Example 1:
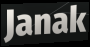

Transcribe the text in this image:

Janak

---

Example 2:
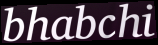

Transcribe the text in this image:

bhabchi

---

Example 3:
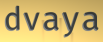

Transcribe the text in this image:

dvaya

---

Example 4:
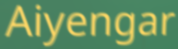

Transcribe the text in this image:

Aiyengar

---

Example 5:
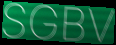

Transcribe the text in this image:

SGBV